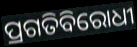
ପ୍ରଗତିବିରୋଧୀ